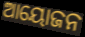
ଆୟୋଜନ